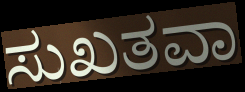
ಸುಖತವಾ